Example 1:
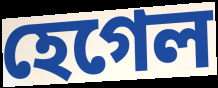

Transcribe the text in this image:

হেগেল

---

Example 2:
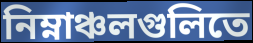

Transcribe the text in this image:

নিম্নাঞ্চলগুলিতে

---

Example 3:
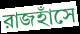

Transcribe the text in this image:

রাজহাঁসে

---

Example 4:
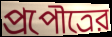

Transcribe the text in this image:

প্রপৌত্রের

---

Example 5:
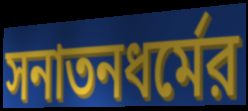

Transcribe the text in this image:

সনাতনধর্মের